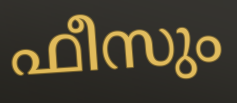
ഫീസും